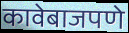
कावेबाजपणे